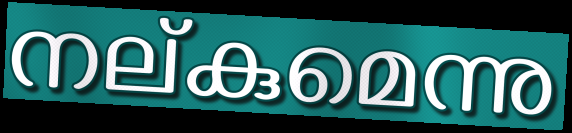
നല്‌കുമെന്നു